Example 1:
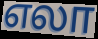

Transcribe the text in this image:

எலா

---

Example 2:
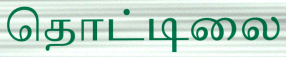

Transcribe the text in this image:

தொட்டிலை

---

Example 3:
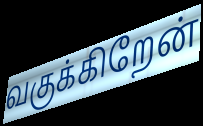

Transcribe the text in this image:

வகுக்கிறேன்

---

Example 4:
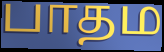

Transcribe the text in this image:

பாதம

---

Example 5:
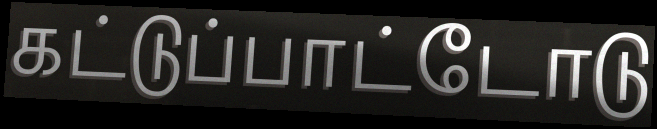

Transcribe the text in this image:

கட்டுப்பாட்டோடு